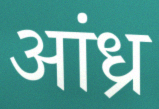
आंध्र